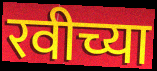
रवीच्या